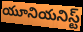
యూనియనిస్ట్